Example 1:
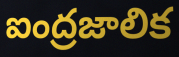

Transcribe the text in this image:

ఐంద్రజాలిక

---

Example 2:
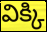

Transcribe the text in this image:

విక్కి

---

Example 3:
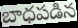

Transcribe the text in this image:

బాధపడిన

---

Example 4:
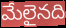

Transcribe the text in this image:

మేలైనది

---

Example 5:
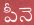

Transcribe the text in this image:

పీనె